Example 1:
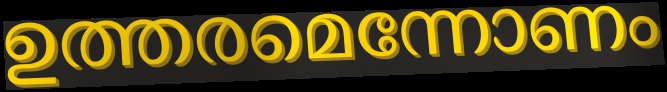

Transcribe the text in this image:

ഉത്തരമെന്നോണം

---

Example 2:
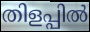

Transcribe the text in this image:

തിളപ്പിൽ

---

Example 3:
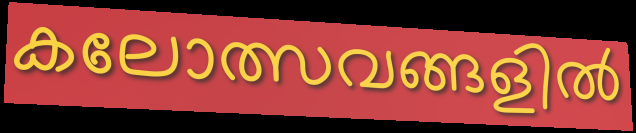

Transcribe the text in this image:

കലോത്സവങ്ങളിൽ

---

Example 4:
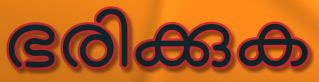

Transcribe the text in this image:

ഭരിക്കുക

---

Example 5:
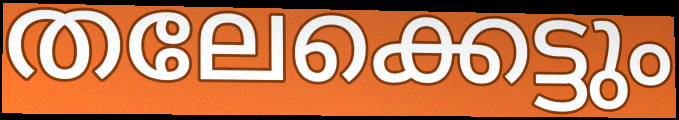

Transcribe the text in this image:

തലേക്കെട്ടും